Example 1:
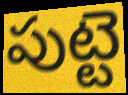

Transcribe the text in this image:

పుట్టె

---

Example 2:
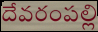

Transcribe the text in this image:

దేవరంపల్లి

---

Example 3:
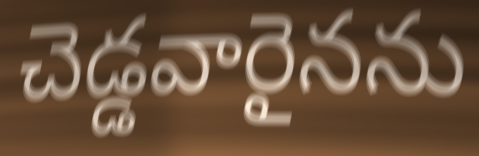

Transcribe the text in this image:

చెడ్డవారైనను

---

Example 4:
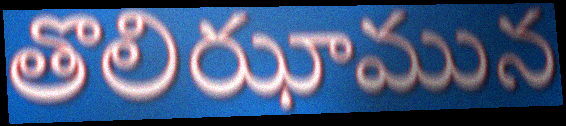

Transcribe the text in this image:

తొలిఝామున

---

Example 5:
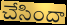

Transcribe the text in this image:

చేసిందా